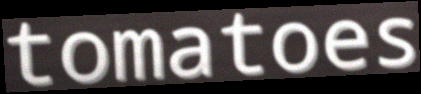
tomatoes